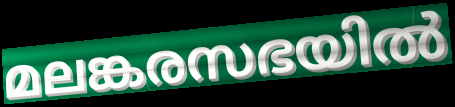
മലങ്കരസഭയിൽ